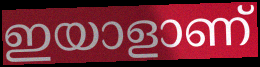
ഇയാളാണ്